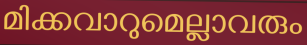
മിക്കവാറുമെല്ലാവരും